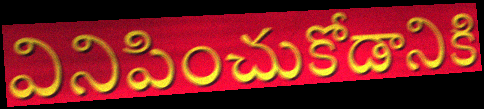
వినిపించుకోడానికి